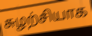
சுழற்சியாக